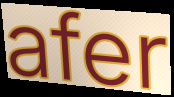
afer